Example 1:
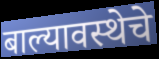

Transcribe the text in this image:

बाल्यावस्थेचे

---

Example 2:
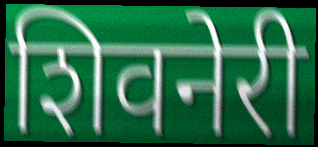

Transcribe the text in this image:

शिवनेरी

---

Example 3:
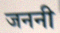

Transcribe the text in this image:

जननी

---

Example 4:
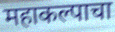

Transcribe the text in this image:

महाकल्पाचा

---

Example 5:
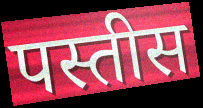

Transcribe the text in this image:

पस्तीस